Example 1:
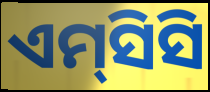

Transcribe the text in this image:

ଏମ୍‌ସିସି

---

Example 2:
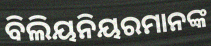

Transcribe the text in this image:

ବିଲିୟନିୟରମାନଙ୍କ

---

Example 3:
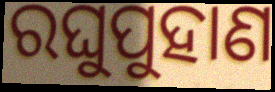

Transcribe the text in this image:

ରଘୁପୁହାଣ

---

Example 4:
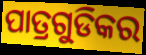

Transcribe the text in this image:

ପାତ୍ରଗୁଡିକର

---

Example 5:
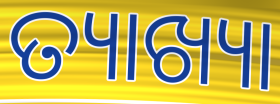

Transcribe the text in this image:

ତ୍ୟାଖ୍ୟା